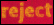
reject